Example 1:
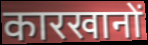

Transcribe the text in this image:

कारखानों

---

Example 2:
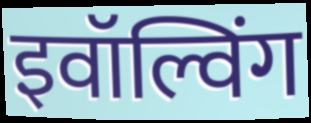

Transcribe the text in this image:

इवॉल्विंग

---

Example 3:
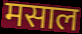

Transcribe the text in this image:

मसाल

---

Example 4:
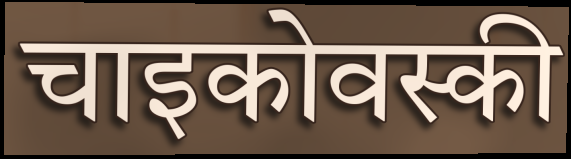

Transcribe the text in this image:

चाइकोवस्की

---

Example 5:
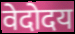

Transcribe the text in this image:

वेदोदय